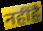
नहींहै